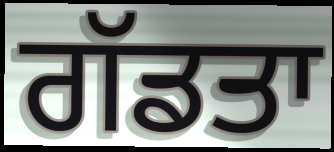
ਗੱਡਤਾ